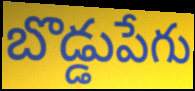
బొడ్డుపేగు